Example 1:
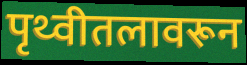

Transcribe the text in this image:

पृथ्वीतलावरून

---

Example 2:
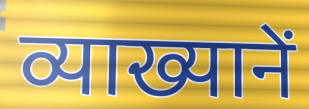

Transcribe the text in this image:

व्याख्यानें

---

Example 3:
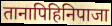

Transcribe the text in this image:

तानापिहिनिपाजा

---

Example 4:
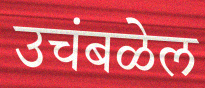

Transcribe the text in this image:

उचंबळेल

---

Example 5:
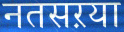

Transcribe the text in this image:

नतसऱया